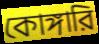
কোঙ্গারি